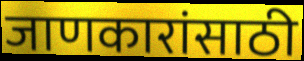
जाणकारांसाठी